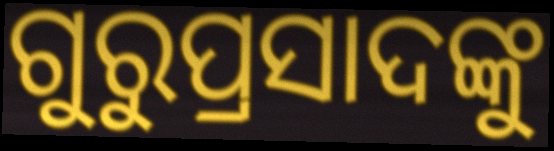
ଗୁରୁପ୍ରସାଦଙ୍କୁ